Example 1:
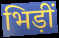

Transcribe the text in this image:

भिड़ीं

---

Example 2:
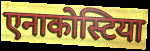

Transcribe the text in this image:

एनाकोस्टिया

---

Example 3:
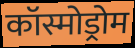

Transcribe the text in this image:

कॉस्मोड्रोम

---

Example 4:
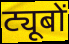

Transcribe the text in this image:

ट्यूबों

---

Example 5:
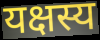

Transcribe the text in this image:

यक्षस्य